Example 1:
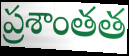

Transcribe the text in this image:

ప్రశాంతత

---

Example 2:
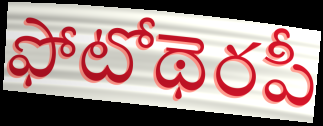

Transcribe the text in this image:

ఫోటోథెరపీ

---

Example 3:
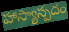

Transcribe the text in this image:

హాస్యాస్పదం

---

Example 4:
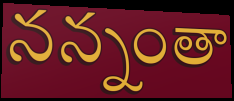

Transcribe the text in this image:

నన్నంతా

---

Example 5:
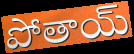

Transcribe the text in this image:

పోతాయ్